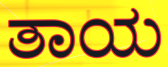
ತಾಯ